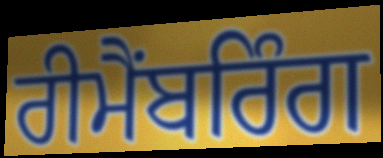
ਰੀਮੈਂਬਰਿੰਗ